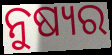
ନୁଷ୍ୟର